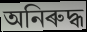
অনিৰুদ্ধ